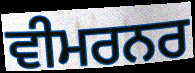
ਵੀਮਰਨਰ